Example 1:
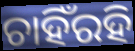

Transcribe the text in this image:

ଚାହିଁରହି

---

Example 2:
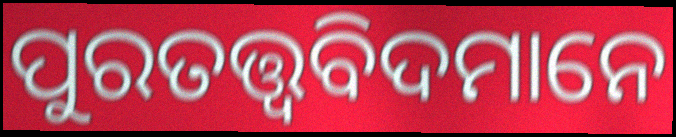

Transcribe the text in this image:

ପୁରତତ୍ତ୍ୱବିଦମାନେ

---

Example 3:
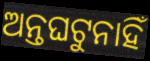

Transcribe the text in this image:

ଅନ୍ତଘଟୁନାହିଁ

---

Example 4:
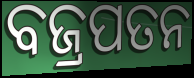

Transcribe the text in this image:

ବଜ୍ରପତନ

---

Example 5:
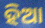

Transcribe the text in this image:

ହିଆ